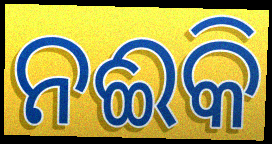
ନଈକି